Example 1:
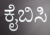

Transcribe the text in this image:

ಕೈಬಿಸಿ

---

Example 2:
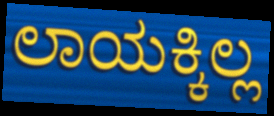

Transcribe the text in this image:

ಲಾಯಕ್ಕಿಲ್ಲ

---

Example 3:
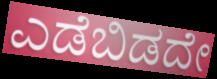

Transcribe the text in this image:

ಎಡೆಬಿಡದೇ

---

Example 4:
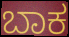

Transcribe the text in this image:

ಬಾಕ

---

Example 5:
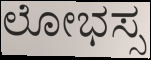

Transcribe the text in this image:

ಲೋಭಸ್ಸ